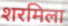
शरमिला